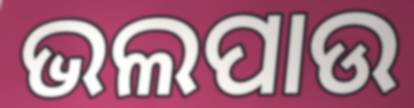
ଭଲପାଉ